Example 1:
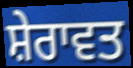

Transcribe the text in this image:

ਸ਼ੇਰਾਵਤ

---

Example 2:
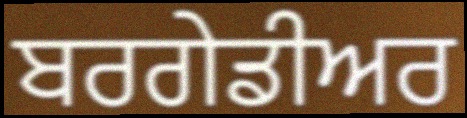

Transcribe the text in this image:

ਬਰਗੇਡੀਅਰ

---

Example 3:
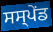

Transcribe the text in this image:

ਸਸ੍ਪੇੰਡ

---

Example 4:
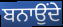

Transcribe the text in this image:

ਬਨਾਉਂਦੇ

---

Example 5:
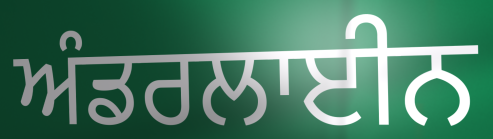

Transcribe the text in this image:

ਅੰਡਰਲਾਈਨ